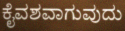
ಕೈವಶವಾಗುವುದು